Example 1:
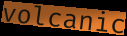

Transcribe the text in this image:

volcanic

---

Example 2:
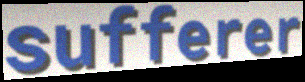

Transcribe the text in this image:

sufferer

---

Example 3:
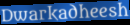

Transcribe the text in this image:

Dwarkadheesh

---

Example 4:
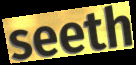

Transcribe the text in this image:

seeth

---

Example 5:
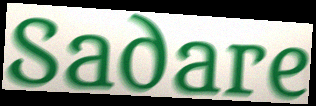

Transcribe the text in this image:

Sadare